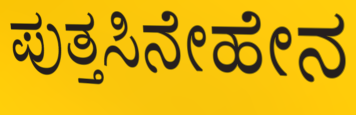
ಪುತ್ತಸಿನೇಹೇನ